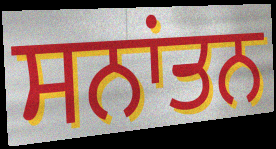
ਸਨਾਂਤਨ